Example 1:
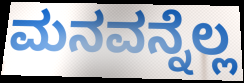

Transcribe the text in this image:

ಮನವನ್ನೆಲ್ಲ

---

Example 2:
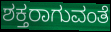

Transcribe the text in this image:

ಶಕ್ತರಾಗುವಂತೆ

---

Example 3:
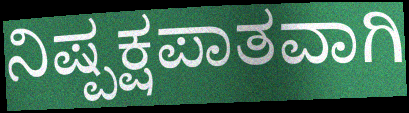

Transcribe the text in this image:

ನಿಷ್ಪಕ್ಷಪಾತವಾಗಿ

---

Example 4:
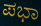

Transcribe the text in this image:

ಪಭಾ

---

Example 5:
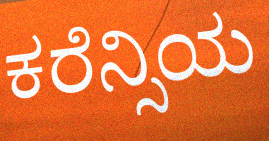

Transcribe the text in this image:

ಕರೆನ್ಸಿಯ